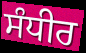
ਸੰਧੀਰ